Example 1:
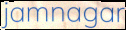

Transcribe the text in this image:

jamnagar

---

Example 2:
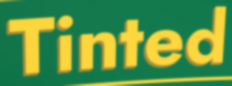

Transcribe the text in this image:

Tinted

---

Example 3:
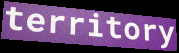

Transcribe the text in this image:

territory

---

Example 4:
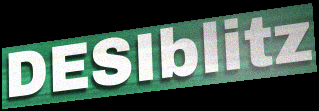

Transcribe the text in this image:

DESIblitz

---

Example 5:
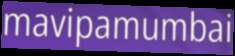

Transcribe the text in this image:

mavipamumbai